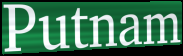
Putnam